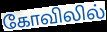
கோவிலில்